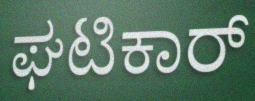
ಘಟಿಕಾರ್